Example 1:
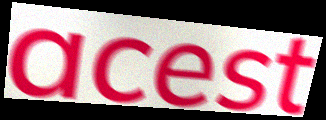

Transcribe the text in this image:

acest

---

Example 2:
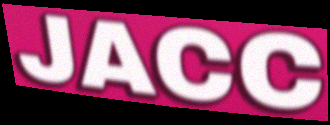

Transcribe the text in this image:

JACC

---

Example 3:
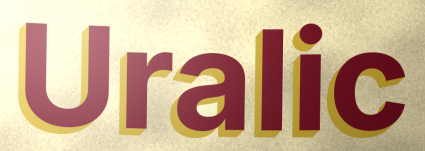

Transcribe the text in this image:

Uralic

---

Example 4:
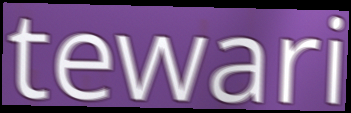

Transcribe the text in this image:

tewari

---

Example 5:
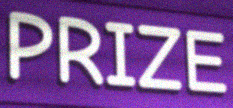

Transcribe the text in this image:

PRIZE